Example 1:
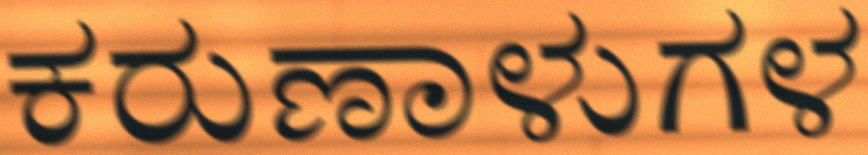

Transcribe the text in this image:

ಕರುಣಾಳುಗಳ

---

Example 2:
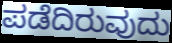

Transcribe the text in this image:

ಪಡೆದಿರುವುದು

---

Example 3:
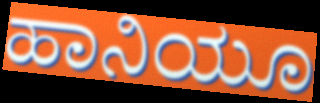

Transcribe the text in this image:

ಹಾನಿಯೂ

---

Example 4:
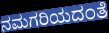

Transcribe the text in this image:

ನಮಗರಿಯದಂತೆ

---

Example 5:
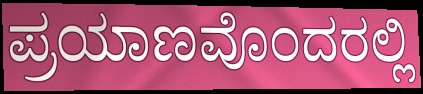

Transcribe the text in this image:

ಪ್ರಯಾಣವೊಂದರಲ್ಲಿ